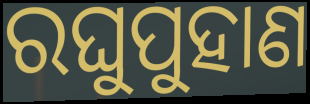
ରଘୁପୁହାଣ